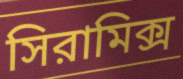
সিরামিক্স